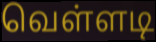
வெள்ளடி